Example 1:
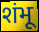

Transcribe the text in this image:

शंभू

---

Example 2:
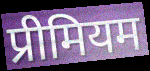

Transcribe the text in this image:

प्रीमियम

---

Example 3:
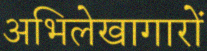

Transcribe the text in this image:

अभिलेखागारों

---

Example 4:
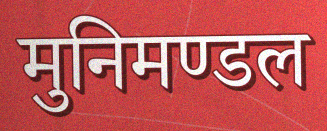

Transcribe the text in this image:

मुनिमण्डल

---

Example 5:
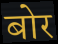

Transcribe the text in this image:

बोर